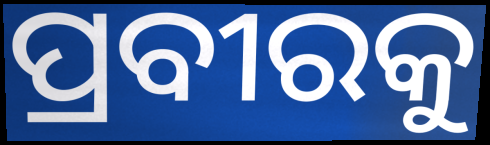
ପ୍ରବୀରକୁ